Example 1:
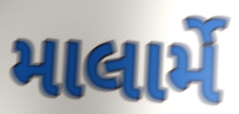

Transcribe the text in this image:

માલાર્મે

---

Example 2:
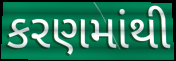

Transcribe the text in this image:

કરણમાંથી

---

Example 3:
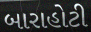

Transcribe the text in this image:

બારાહોટી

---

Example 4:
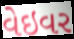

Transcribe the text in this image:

વેઇવર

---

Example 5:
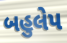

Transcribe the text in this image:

બહુલેપ